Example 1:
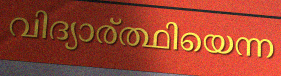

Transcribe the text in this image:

വിദ്യാര്ത്ഥിയെന്ന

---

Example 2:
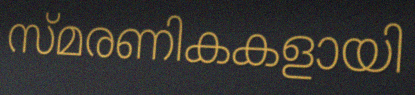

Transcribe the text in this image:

സ്മരണികകളായി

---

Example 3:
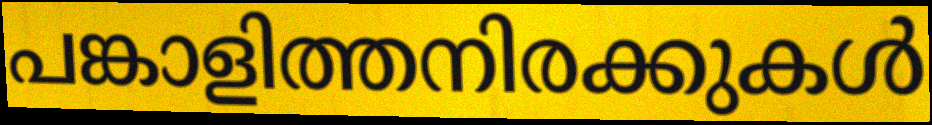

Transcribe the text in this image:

പങ്കാളിത്തനിരക്കുകൾ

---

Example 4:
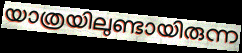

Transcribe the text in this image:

യാത്രയിലുണ്ടായിരുന്ന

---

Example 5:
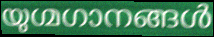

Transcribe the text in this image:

യുഗ്മഗാനങ്ങൾ